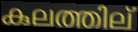
കുലത്തില്